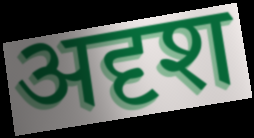
अदृश